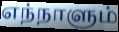
எந்நாளும்